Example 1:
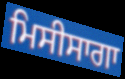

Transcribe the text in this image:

ਮਿਸੀਸਾਗਾ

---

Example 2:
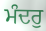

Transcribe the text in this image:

ਮੰਦਰੁ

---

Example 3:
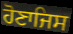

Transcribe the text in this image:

ਹੋਣਾਜਿਸ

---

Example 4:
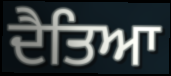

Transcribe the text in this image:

ਦੈਤਿਆ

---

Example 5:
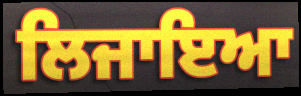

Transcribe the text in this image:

ਲਿਜਾਇਆ